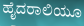
ಹೈದರಾಲಿಯೂ